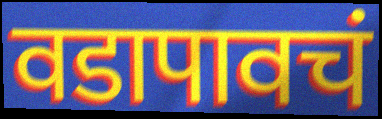
वडापावचं